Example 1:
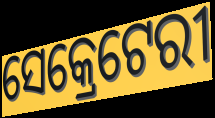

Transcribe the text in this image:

ସେକ୍ରେଟେରୀ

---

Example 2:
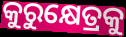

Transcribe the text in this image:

କୁରୁକ୍ଷେତ୍ରକୁ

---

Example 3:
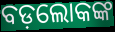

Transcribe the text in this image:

ବଡ଼ଲୋକଙ୍କ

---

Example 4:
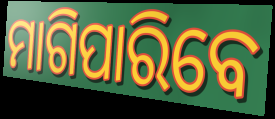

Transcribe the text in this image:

ମାଗିପାରିବେ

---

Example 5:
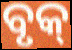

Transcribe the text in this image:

ବୃକ୍